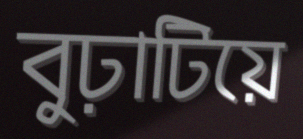
বুঢ়াটিয়ে